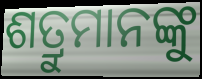
ଶତ୍ରୁମାନଙ୍କୁ